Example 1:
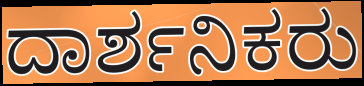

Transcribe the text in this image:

ದಾರ್ಶನಿಕರು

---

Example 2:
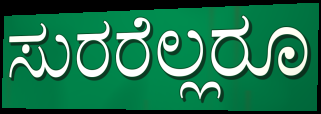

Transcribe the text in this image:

ಸುರರೆಲ್ಲರೂ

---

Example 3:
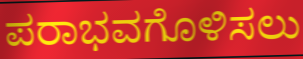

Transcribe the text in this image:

ಪರಾಭವಗೊಳಿಸಲು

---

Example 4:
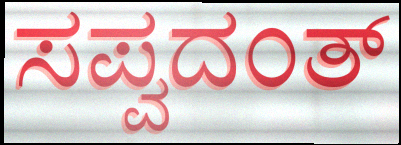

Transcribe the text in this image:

ಸಪ್ವದಂತ್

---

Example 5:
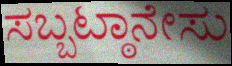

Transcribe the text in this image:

ಸಬ್ಬಟ್ಠಾನೇಸು